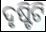
ଦୃଷ୍ଟିଟି